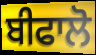
ਬੀਫਾਲੋ